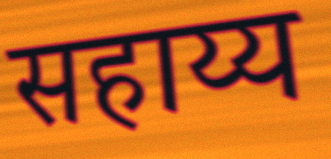
सहाय्य